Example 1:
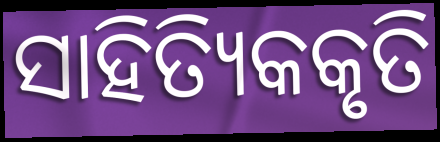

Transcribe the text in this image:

ସାହିତ୍ୟିକକୃତି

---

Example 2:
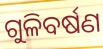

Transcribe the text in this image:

ଗୁଳିବର୍ଷଣ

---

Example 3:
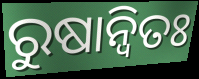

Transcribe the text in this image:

ରୁଷାନ୍ଵିତଃ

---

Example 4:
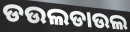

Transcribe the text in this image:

ଡଉଲଡାଉଲ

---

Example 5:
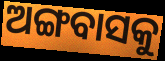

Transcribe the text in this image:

ଅଙ୍ଗବାସକୁ